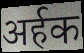
अर्हक